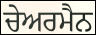
ਚੇਅਰਮੈਨ